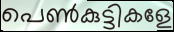
പെൺകുട്ടികളേ